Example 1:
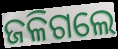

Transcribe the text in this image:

ଜଳିଗଲେ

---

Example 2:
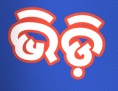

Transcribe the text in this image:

ଭିଡ଼ି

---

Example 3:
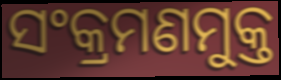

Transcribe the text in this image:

ସଂକ୍ରମଣମୁକ୍ତ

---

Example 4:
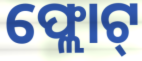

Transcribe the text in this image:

ଫ୍ଲୋଟ୍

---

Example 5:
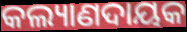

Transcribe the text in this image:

କଲ୍ୟାଣଦାୟକ